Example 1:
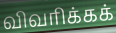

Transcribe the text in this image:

விவரிக்கக்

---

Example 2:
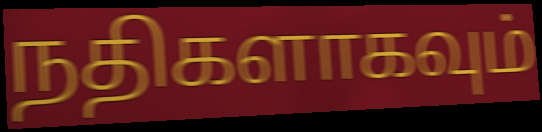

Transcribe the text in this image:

நதிகளாகவும்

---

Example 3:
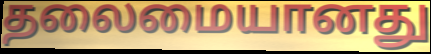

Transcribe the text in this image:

தலைமையானது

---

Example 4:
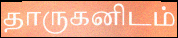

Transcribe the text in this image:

தாருகனிடம்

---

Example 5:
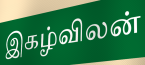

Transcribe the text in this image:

இகழ்விலன்